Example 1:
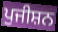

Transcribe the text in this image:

ਪੁਜੀਸ਼ਨ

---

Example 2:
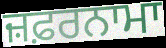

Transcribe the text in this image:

ਜ਼ਫ਼ਰਨਾਮਾ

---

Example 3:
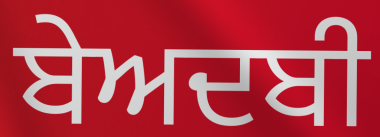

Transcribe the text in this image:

ਬੇਅਦਬੀ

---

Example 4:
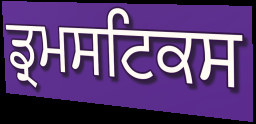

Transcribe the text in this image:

ਡ੍ਰਮਸਟਿਕਸ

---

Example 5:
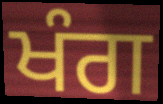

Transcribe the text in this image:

ਖੰਗ